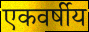
एकवर्षीय